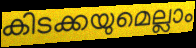
കിടക്കയുമെല്ലാം